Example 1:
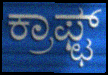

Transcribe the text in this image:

ಕ್ರಾಫ್ಟ್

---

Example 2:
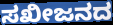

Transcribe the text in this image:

ಸಖೀಜನದ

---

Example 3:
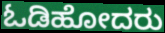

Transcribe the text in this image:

ಓಡಿಹೋದರು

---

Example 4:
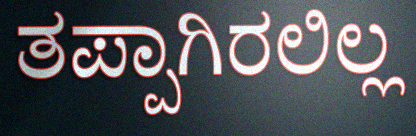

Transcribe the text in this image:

ತಪ್ಪಾಗಿರಲಿಲ್ಲ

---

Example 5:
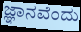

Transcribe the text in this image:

ಜ್ಞಾನವೆಂದು